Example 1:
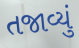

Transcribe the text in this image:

તજાવ્યું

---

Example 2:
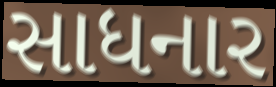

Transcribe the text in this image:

સાધનાર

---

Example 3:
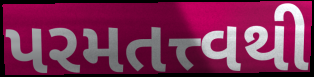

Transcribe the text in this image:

પરમતત્ત્વથી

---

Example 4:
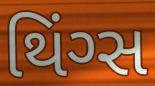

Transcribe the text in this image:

થિંગ્સ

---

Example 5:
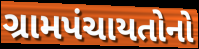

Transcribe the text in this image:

ગ્રામપંચાયતોનો